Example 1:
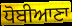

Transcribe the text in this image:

ਧੋਬੀਆਣਾ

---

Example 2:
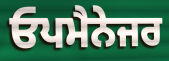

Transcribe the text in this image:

ਓਪਮੈਨੇਜਰ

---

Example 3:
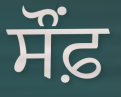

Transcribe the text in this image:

ਸੌਂਫ਼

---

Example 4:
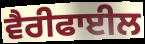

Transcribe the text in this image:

ਵੈਰੀਫਾਈਲ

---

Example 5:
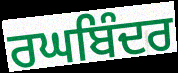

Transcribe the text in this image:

ਰਘਬਿੰਦਰ